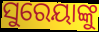
ସୁରେୟାଙ୍କୁ